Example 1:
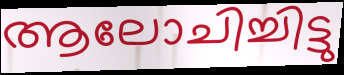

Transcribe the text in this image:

ആലോചിച്ചിട്ടു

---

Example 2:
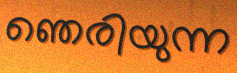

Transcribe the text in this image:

ഞെരിയുന്ന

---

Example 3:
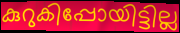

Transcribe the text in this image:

കുറുകിപ്പോയിട്ടില്ല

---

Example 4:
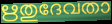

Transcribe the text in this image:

ഋതുദേവതാ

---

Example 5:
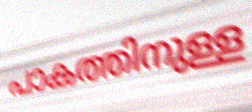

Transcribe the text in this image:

പാകത്തിനുള്ള